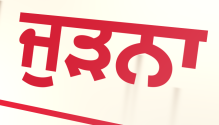
ਜੁੜਨਾ